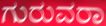
ಗುರುವರಾ